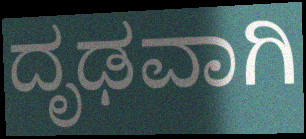
ದೃಢವಾಗಿ